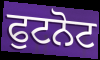
ਫੁਟਨੋਟ